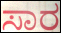
ಸಾರ